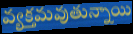
వ్యక్తమవుతున్నాయి